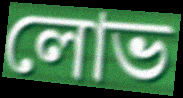
লোভ